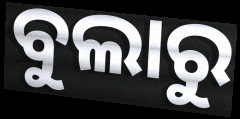
ବୁଲାରୁ